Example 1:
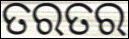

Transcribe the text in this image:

ତରତର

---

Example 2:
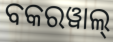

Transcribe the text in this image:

ବକରୱାଲ୍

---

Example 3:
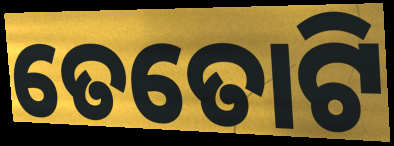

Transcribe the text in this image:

ତେତୋଟି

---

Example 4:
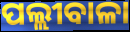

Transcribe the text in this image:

ପଲ୍ଲୀବାଳା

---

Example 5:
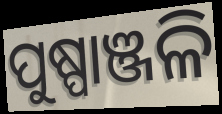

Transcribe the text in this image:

ପୁଷ୍ପାଞ୍ଜଳି